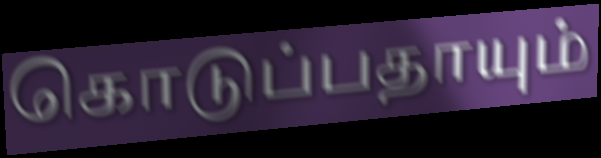
கொடுப்பதாயும்